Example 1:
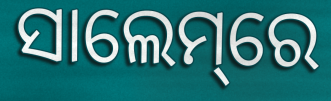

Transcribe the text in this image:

ସାଲେମ୍‌ରେ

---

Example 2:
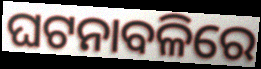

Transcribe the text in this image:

ଘଟନାବଳିରେ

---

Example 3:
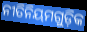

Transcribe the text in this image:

ନୀତିନିୟମଗୁଡ଼ିକ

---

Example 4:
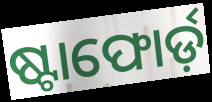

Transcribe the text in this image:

ଷ୍ଟାଫୋର୍ଡ଼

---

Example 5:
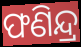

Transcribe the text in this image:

ଫଣିନ୍ଦ୍ର